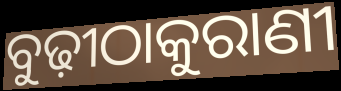
ବୁଢ଼ୀଠାକୁରାଣୀ